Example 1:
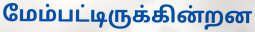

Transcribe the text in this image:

மேம்பட்டிருக்கின்றன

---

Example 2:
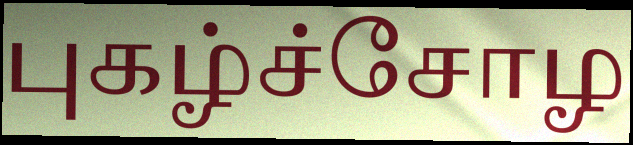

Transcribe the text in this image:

புகழ்ச்சோழ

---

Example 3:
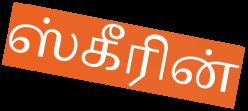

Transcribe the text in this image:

ஸ்கீரின்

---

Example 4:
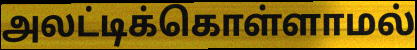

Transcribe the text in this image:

அலட்டிக்கொள்ளாமல்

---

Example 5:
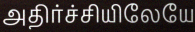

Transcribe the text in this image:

அதிர்ச்சியிலேயே